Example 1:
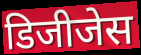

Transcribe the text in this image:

डिजीजेस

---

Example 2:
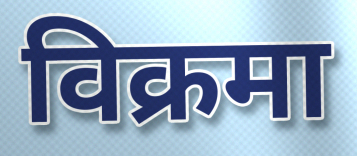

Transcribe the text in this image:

विक्रमा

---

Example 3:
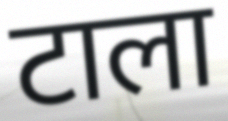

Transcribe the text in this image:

टाला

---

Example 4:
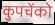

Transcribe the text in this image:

कुपचेंको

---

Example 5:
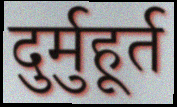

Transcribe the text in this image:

दुर्मुहूर्त